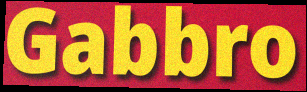
Gabbro